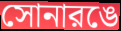
সোনারঙে